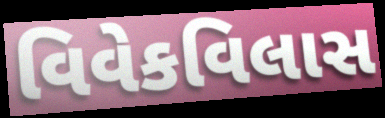
વિવેકવિલાસ